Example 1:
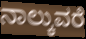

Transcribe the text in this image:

ನಾಲ್ಕುವರೆ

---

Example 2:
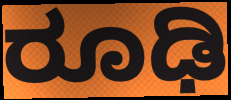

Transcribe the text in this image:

ರೂಢಿ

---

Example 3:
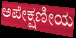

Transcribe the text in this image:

ಅಪೇಕ್ಷಣೀಯ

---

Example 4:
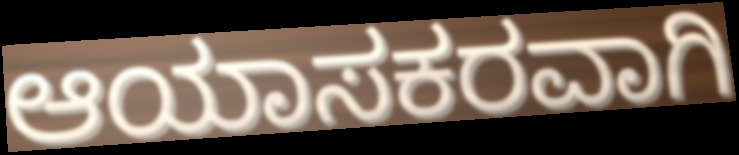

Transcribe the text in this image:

ಆಯಾಸಕರವಾಗಿ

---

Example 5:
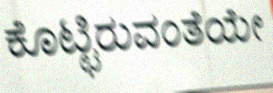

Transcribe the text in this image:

ಕೊಟ್ಟಿರುವಂತೆಯೇ